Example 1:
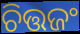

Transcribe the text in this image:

ଚିତ୍ତଜଂ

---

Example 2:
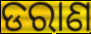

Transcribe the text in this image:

ଡରାଣ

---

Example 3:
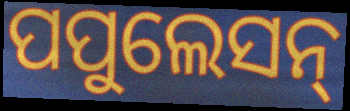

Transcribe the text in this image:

ପପୁଲେସନ୍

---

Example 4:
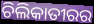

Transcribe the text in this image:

ଚିଲିକାତୀରର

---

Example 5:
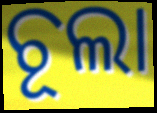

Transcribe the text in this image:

ଚୂଲା